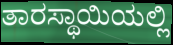
ತಾರಸ್ಥಾಯಿಯಲ್ಲಿ